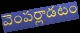
వెంపర్లాడటం